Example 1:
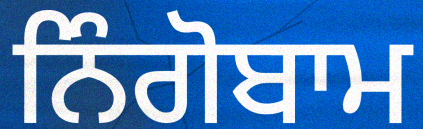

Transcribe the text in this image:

ਨਿੰਗੋਬਾਮ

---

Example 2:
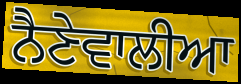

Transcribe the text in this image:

ਨੈਣੇਵਾਲੀਆ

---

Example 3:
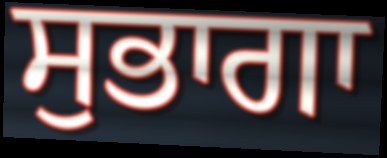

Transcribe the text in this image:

ਸੁਭਾਗਾ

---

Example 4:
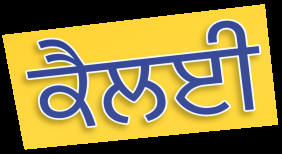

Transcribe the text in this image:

ਕੈਲਈ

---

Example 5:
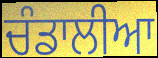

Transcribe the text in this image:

ਚੰਡਾਲੀਆ